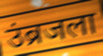
उंब्रजला